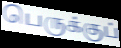
பெருக்குப்